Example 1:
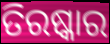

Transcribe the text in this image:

ତିରଷ୍କାର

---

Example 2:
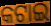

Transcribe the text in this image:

କଟାଇ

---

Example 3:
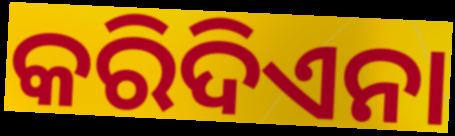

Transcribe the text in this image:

କରିଦିଏନା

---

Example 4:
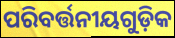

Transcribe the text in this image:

ପରିବର୍ତ୍ତନୀୟଗୁଡ଼ିକ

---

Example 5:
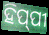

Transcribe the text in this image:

ହିପ୍‍ପୀ